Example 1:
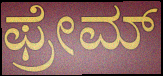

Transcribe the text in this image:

ಫ್ರೇಮ್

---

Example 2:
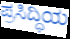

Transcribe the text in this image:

ಪ್ರಸಿದ್ಧಿಯ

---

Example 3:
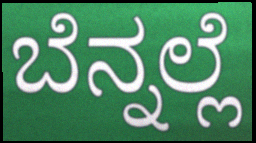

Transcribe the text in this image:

ಬೆನ್ನಲ್ಲೆ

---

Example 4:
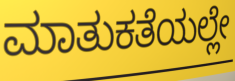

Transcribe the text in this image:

ಮಾತುಕತೆಯಲ್ಲೇ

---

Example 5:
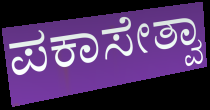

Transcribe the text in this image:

ಪಕಾಸೇತ್ವಾ